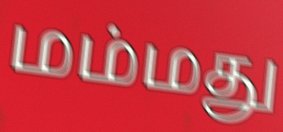
மம்மது